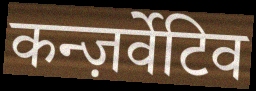
कन्ज़र्वेटिव